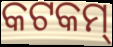
କଟକମ୍